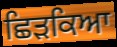
ਛਿੜਕਿਆ